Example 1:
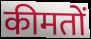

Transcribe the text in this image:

कीमतों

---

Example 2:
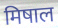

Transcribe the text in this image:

मिषाल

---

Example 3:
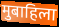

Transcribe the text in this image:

मुबाहिला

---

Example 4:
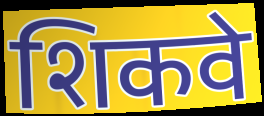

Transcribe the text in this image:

शिकवे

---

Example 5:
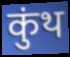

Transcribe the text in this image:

कुंथ